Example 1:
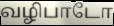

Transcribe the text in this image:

வழிபாடோ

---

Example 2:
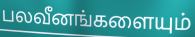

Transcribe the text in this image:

பலவீனங்களையும்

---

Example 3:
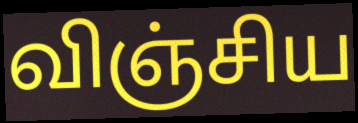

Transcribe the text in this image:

விஞ்சிய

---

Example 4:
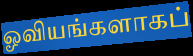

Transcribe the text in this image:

ஓவியங்களாகப்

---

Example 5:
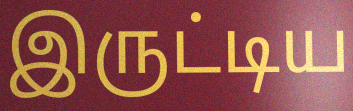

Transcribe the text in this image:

இருட்டிய